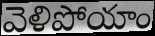
వెళిపోయాం